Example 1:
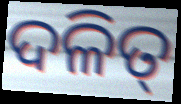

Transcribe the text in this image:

ଦଳିତ୍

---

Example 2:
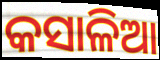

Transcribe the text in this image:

କସାଳିଆ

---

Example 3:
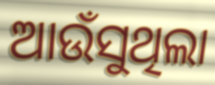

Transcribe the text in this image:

ଆଉଁସୁଥିଲା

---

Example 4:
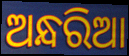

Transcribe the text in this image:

ଅନ୍ଧରିଆ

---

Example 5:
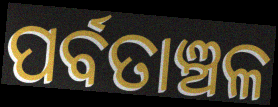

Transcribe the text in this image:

ପର୍ବତାଞ୍ଚଳ